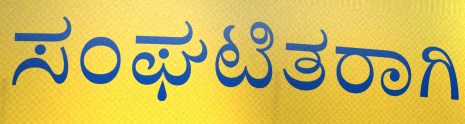
ಸಂಘಟಿತರಾಗಿ